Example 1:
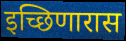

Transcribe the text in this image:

इच्छिणारास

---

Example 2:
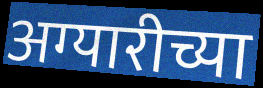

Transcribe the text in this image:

अग्यारीच्या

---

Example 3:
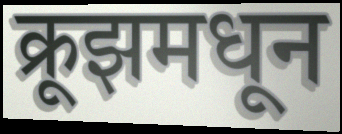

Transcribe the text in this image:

क्रूझमधून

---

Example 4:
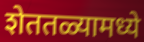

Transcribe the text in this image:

शेततळ्यामध्ये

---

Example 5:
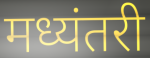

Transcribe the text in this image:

मध्यंतरी